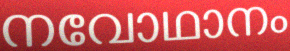
നവോഥാനം